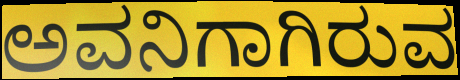
ಅವನಿಗಾಗಿರುವ